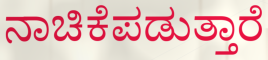
ನಾಚಿಕೆಪಡುತ್ತಾರೆ